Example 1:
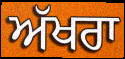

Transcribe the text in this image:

ਅੱਖਰਾ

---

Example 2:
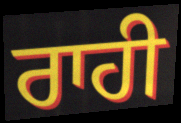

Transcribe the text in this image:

ਰਾਹੀ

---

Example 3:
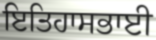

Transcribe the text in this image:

ਇਤਿਹਾਸਭਾਈ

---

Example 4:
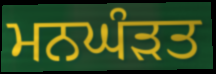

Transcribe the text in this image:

ਮਨਘੰੜਤ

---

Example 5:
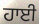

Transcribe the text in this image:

ਹਾਈ